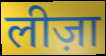
लीज़ा